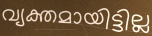
വ്യക്തമായിട്ടില്ല